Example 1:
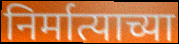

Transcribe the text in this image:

निर्मात्याच्या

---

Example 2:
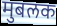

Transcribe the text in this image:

मुबलक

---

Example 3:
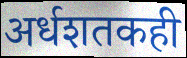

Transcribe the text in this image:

अर्धशतकही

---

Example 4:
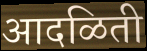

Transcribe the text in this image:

आदळिती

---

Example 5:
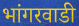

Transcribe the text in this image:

भांगरवाडी